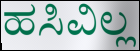
ಹಸಿವಿಲ್ಲ